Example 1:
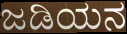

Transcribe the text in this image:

ಜಡಿಯನ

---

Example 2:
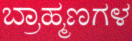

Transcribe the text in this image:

ಬ್ರಾಹ್ಮಣಗಳ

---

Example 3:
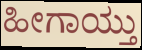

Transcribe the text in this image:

ಹೀಗಾಯ್ತು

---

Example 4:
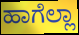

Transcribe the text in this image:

ಹಾಗೆಲ್ಲಾ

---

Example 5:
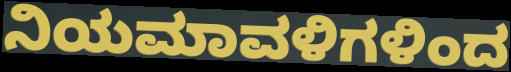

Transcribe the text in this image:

ನಿಯಮಾವಳಿಗಳಿಂದ